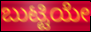
ಬುಟ್ಟಿಯೇ